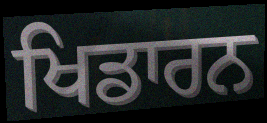
ਖਿਡਾਰਨ